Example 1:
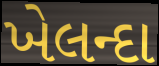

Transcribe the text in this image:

ખેલન્દા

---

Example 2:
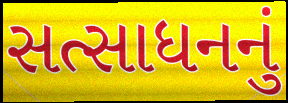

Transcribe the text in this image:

સત્સાધનનું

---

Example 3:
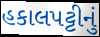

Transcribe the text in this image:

હકાલપટ્ટીનું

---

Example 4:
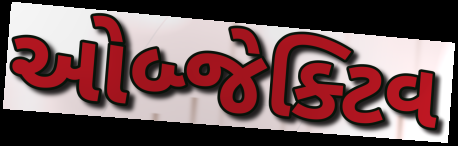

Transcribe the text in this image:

ઓબ્જેક્ટિવ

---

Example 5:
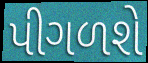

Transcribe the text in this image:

પીગળશે